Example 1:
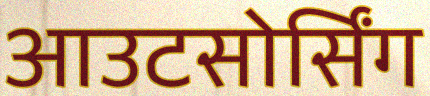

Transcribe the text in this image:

आउटसोर्सिंग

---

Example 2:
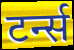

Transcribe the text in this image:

टर्न्स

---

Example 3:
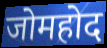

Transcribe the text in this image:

जोमहोद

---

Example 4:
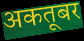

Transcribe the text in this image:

अकतूबर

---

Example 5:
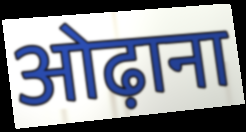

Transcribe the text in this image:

ओढ़ाना